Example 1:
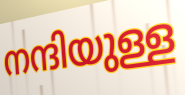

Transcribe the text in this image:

നന്ദിയുള്ള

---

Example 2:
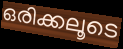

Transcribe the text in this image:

ഒരിക്കലൂടെ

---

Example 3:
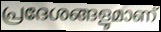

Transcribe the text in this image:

പ്രദേശങ്ങളുമാണ്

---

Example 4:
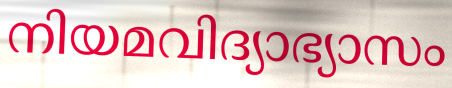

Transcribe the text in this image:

നിയമവിദ്യാഭ്യാസം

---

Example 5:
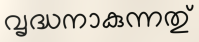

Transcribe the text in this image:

വൃദ്ധനാകുന്നതു്